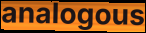
analogous